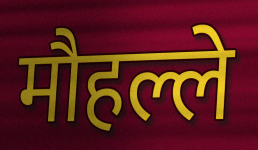
मौहल्ले